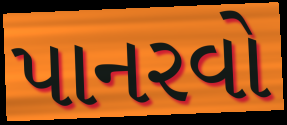
પાનરવો